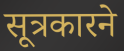
सूत्रकारने